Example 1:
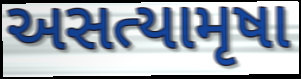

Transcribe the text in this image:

અસત્યામૃષા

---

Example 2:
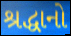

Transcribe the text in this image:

શ્રદ્ધાનો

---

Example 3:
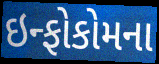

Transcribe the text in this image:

ઇન્ફોકોમના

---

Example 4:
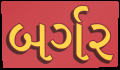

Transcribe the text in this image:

બર્ગર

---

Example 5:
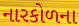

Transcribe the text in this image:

નારકોળના